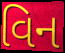
વિન